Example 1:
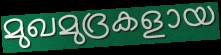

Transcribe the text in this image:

മുഖമുദ്രകളായ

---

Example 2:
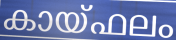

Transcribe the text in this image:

കായ്ഫലം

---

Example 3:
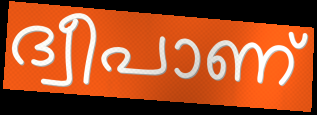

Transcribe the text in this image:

ദ്വീപാണ്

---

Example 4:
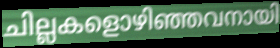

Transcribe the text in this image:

ചില്ലകളൊഴിഞ്ഞവനായി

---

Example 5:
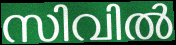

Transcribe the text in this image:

സിവിൽ